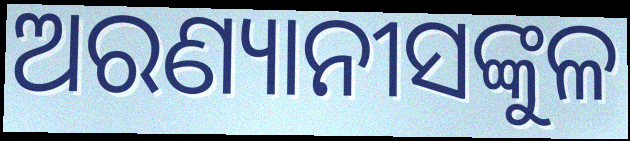
ଅରଣ୍ୟାନୀସଙ୍କୁଳ